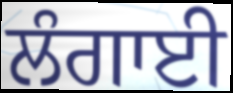
ਲੰਗਾਈ